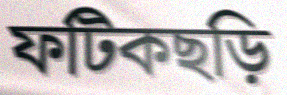
ফটিকছড়ি